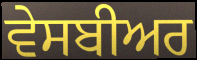
ਵੇਸਬੀਅਰ